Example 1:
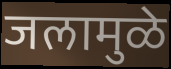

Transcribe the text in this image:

जलामुळे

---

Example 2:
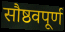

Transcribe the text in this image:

सौष्ठवपूर्ण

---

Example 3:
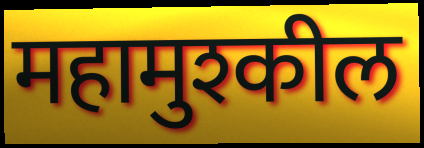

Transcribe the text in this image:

महामुश्कील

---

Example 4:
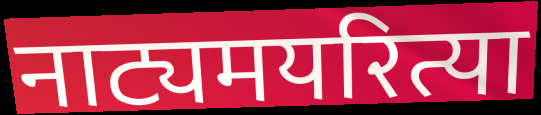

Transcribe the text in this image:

नाट्यमयरित्या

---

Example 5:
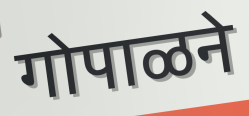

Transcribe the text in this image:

गोपाळने